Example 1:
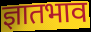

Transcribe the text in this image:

ज्ञातभाव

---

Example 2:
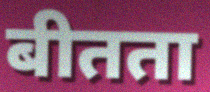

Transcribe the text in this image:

बीतता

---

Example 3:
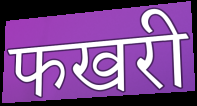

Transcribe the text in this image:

फखरी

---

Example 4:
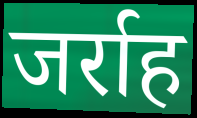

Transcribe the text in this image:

जर्राह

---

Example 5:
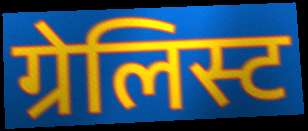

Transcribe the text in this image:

ग्रेलिस्ट